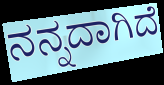
ನನ್ನದಾಗಿದೆ